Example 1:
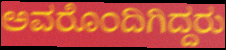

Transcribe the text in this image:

ಅವರೊಂದಿಗಿದ್ದರು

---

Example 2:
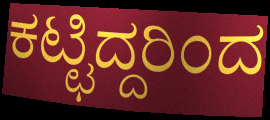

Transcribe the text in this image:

ಕಟ್ಟಿದ್ದರಿಂದ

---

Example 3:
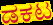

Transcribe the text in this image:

ಡಕಟ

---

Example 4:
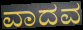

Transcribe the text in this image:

ವಾದವ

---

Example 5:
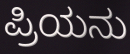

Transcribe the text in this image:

ಪ್ರಿಯನು